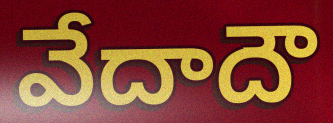
వేదాదౌ